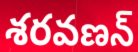
శరవణన్